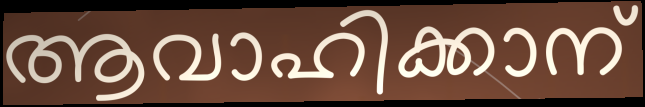
ആവാഹിക്കാന്